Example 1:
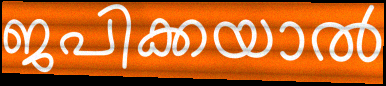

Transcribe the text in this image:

ജപിക്കയാൽ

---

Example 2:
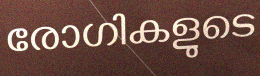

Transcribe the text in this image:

രോഗികളുടെ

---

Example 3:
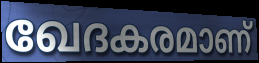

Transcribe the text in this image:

ഖേദകരമാണ്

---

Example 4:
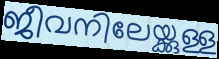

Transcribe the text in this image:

ജീവനിലേയ്ക്കുള്ള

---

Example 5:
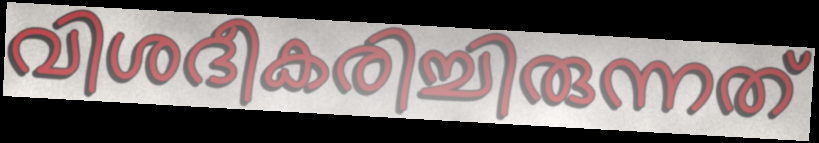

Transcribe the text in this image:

വിശദീകരിച്ചിരുന്നത്